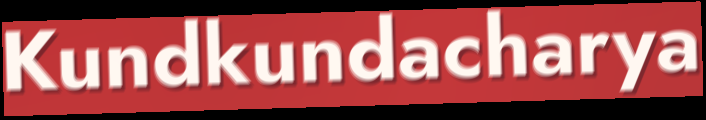
Kundkundacharya